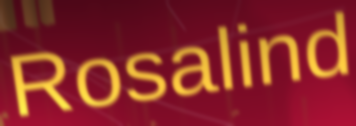
Rosalind